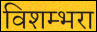
विशम्भरा